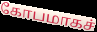
கோபமாகச்